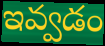
ఇవ్వడం